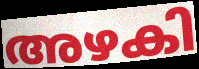
അഴകി